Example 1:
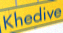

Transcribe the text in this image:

Khedive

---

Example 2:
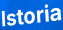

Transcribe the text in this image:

Istoria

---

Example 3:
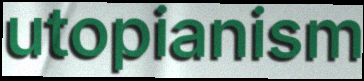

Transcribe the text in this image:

utopianism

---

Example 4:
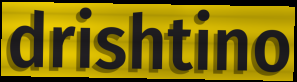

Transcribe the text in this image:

drishtino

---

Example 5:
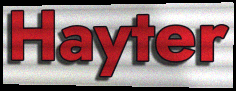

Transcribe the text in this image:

Hayter